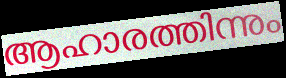
ആഹാരത്തിന്നും